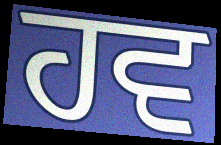
ਹਵ